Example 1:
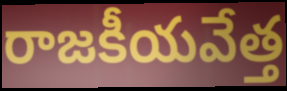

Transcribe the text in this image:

రాజకీయవేత్త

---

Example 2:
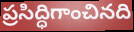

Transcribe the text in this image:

ప్రసిద్ధిగాంచినది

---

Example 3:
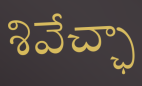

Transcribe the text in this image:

శివేచ్ఛా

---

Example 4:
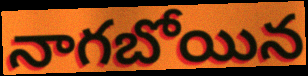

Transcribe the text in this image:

నాగబోయిన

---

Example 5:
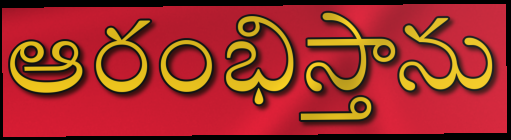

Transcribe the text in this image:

ఆరంభిస్తాను